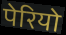
पेरियो